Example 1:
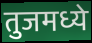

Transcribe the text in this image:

तुजमध्ये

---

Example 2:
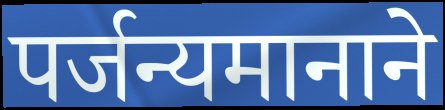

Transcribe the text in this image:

पर्जन्यमानाने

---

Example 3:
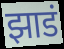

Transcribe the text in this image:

झाडं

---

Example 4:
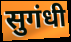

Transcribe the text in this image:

सुगंधी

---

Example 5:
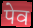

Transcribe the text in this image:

पेव